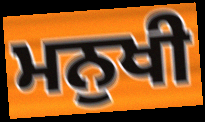
ਮਨੁਖੀ